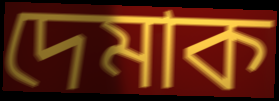
দেমাক